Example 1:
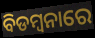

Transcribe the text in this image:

ବିଡମ୍ବନାରେ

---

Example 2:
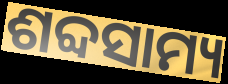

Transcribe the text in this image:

ଶବ୍ଦସାମ୍ୟ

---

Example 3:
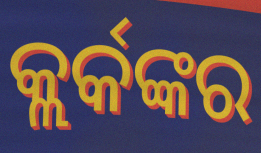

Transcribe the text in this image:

କ୍ଲର୍କଙ୍କର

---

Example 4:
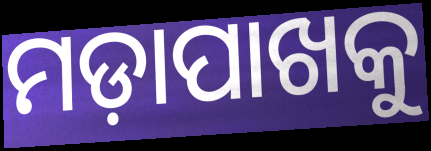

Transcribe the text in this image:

ମଡ଼ାପାଖକୁ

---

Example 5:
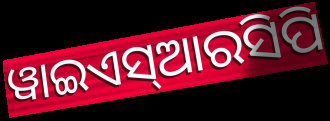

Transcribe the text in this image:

ୱାଇଏସ୍ଆରସିପି